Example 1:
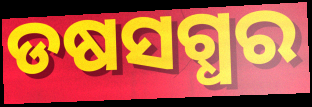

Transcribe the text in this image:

ଡଷସଗ୍ଧର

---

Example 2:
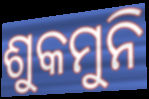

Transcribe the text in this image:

ଶୁକମୁନି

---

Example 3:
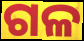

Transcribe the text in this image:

ଗଳ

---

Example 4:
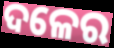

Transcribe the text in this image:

ଦଳେର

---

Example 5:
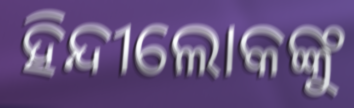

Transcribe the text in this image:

ହିନ୍ଦୀଲୋକଙ୍କୁ